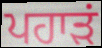
ਪਹਾੜਂ